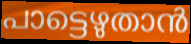
പാട്ടെഴുതാൻ